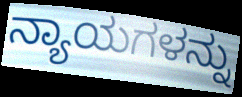
ನ್ಯಾಯಗಳನ್ನು